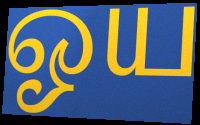
ஓய